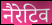
नैरेटिव